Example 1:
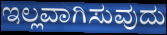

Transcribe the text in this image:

ಇಲ್ಲವಾಗಿಸುವುದು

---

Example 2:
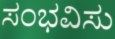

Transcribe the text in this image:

ಸಂಭವಿಸು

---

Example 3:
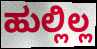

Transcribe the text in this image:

ಹುಲ್ಲಿಲ್ಲ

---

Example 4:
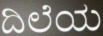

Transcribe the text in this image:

ದಿಲೆಯ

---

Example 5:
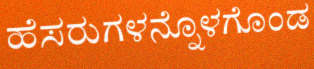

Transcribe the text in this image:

ಹೆಸರುಗಳನ್ನೊಳಗೊಂಡ